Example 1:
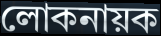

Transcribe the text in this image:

লোকনায়ক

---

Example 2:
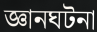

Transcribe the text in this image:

জ্ঞানঘটনা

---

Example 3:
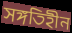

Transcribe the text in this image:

সঙ্গতিহীন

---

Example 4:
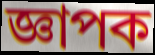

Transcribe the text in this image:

জ্ঞাপক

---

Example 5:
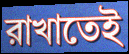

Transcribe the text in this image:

রাখাতেই